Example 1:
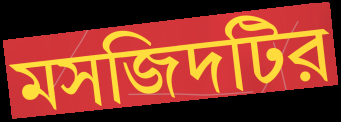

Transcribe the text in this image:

মসজিদটির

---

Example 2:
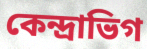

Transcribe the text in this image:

কেন্দ্রাভিগ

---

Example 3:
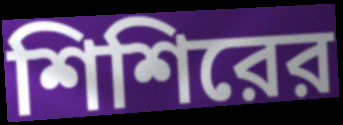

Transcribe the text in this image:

শিশিরের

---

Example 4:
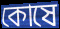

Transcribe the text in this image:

কোষে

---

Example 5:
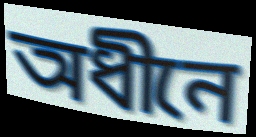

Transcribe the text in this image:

অধীনে